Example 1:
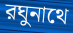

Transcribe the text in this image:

রঘুনাথে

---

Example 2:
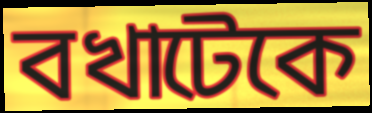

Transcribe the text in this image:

বখাটেকে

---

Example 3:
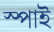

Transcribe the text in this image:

স্পাই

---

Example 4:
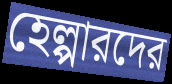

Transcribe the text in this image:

হেল্পারদের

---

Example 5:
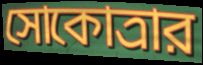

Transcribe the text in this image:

সোকোত্রার